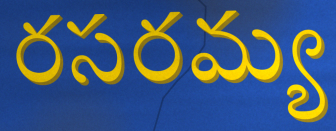
రసరమ్య